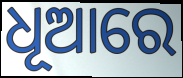
ଧୂଆରେ